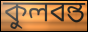
কুলবন্ত